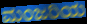
ಮಂಜರಿಯ